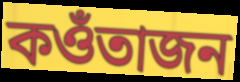
কওঁতাজন